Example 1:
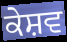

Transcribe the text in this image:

ਕੇਸ਼ਵ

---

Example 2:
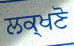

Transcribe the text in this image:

ਲਕ੍ਖਣੋ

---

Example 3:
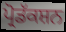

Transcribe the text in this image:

ਪ੍ਰੋਡੱਕਸ਼ਨ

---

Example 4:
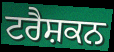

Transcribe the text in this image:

ਟਰੈਸ਼ਕਨ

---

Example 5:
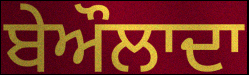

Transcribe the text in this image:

ਬੇਔਲਾਦਾ